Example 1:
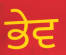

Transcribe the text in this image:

ਭੇਵ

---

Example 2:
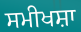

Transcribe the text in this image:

ਸਮੀਖਸ਼ਾ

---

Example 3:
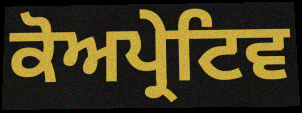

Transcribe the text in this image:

ਕੋਅਪ੍ਰੇਟਿਵ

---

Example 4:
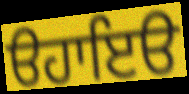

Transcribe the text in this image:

ੳਹਾਇੳ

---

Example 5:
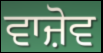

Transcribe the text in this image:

ਵਾਜ਼ੋਵ